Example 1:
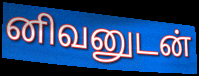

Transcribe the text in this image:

னிவனுடன்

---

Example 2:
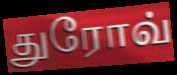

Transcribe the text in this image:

துரோவ்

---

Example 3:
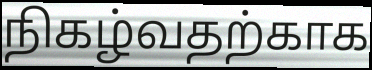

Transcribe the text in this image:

நிகழ்வதற்காக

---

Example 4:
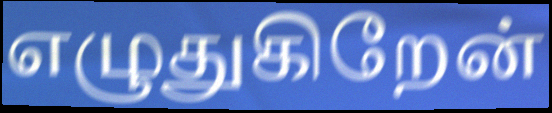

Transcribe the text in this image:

எழுதுகிறேன்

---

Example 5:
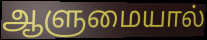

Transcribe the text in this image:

ஆளுமையால்